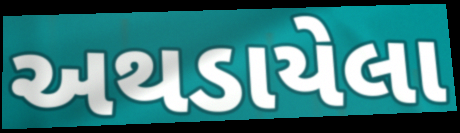
અથડાયેલા